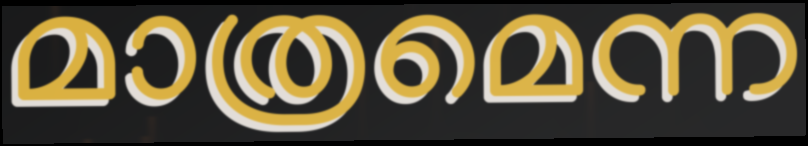
മാത്രമെന്ന